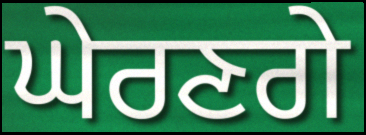
ਘੇਰਣਗੇ